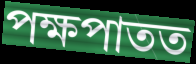
পক্ষপাতত